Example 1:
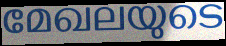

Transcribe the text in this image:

മേഖലയുടെ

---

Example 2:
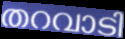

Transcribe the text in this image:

തറവാടി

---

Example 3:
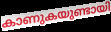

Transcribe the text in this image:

കാണുകയുണ്ടായി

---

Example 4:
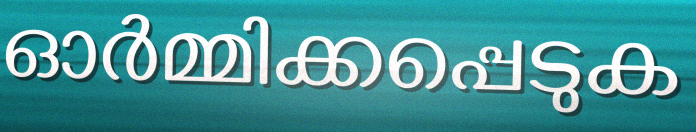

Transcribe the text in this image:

ഓർമ്മിക്കപ്പെടുക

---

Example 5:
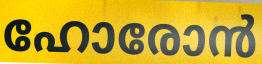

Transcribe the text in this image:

ഹോരോൻ